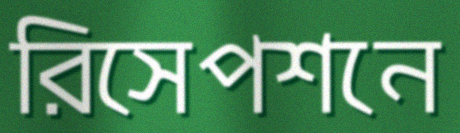
রিসেপশনে